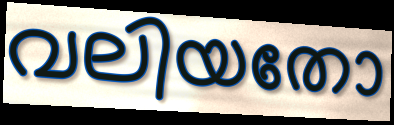
വലിയതോ